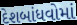
દેશબાંધવોમાં